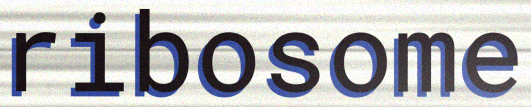
ribosome